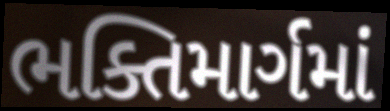
ભક્તિમાર્ગમાં